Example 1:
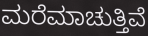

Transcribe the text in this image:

ಮರೆಮಾಚುತ್ತಿವೆ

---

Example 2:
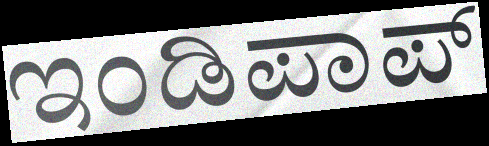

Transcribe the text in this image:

ಇಂಡಿಪಾಪ್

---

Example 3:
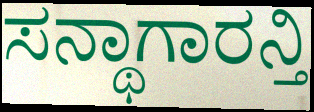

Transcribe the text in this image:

ಸನ್ಥಾಗಾರನ್ತಿ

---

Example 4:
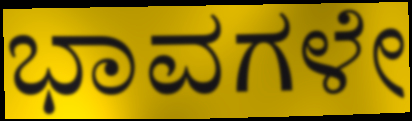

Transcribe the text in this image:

ಭಾವಗಳೇ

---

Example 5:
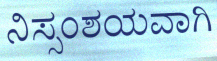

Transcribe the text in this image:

ನಿಸ್ಸಂಶಯವಾಗಿ